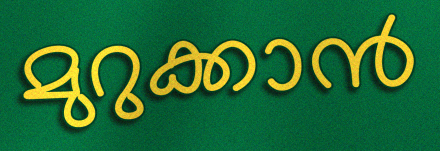
മുറുക്കാൻ